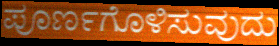
ಪೂರ್ಣಗೊಳಿಸುವುದು